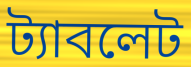
ট্যাবলেট